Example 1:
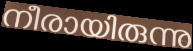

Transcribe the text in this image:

നീരായിരുന്നു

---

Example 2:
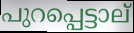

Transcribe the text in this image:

പുറപ്പെട്ടാല്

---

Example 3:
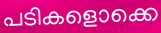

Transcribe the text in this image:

പടികളൊക്കെ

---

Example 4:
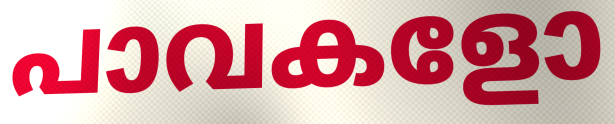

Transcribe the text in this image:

പാവകളോ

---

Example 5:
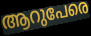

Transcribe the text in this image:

ആറുപേരെ